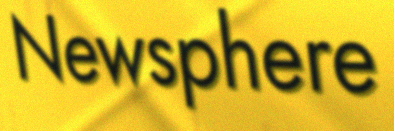
Newsphere